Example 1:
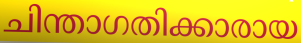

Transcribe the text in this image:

ചിന്താഗതിക്കാരായ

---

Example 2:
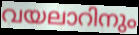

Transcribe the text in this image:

വയലാറിനും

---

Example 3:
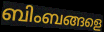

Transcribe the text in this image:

ബിംബങ്ങളെ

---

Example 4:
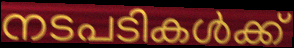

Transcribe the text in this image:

നടപടികൾക്ക്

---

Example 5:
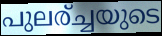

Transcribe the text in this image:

പുലര്ച്ചയുടെ